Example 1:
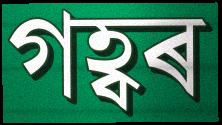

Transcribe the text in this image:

গহ্বৰ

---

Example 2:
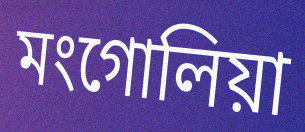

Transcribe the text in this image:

মংগোলিয়া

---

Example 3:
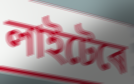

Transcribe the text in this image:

লাইটেৰে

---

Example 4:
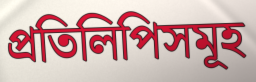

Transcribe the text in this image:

প্ৰতিলিপিসমূহ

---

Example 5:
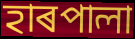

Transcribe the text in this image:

হাৰপালা